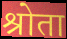
श्रोता